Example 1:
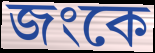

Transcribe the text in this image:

জংকে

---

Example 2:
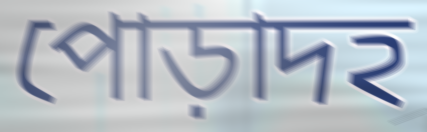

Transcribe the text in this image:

পোড়াদহ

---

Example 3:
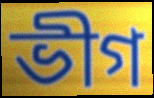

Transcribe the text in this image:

ভীগ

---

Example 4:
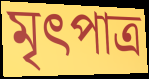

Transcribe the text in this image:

মৃৎপাত্র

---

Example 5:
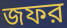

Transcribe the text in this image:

জফর